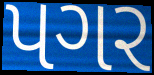
પગર